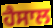
ਹੈਸਾਲ